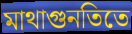
মাথাগুনতিতে